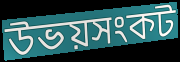
উভয়সংকট